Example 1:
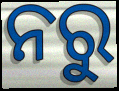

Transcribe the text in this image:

ନରୁ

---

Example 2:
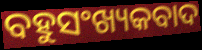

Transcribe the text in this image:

ବହୁସଂଖ୍ୟକବାଦ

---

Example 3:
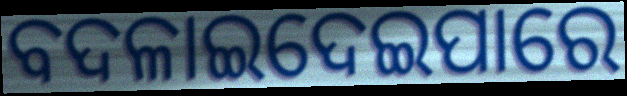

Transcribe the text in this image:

ବଦଳାଇଦେଇପାରେ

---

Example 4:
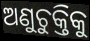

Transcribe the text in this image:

ଅଣୁଚୁକ୍ତିକୁ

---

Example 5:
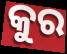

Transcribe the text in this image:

କୁର